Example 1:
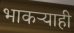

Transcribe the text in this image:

भाकऱ्याही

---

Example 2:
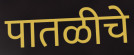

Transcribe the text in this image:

पातळीचे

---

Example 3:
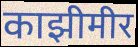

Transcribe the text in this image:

काझीमीर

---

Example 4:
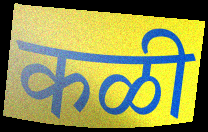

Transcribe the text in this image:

कळी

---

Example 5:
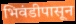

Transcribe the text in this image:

भिवंडीपासून